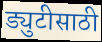
ड्युटीसाठी